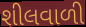
શીલવાળી